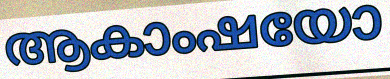
ആകാംഷയോ